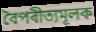
বৈপৰীত্যমূলক